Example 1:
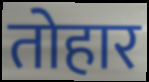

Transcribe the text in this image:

तोहार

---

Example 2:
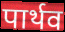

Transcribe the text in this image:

पार्थव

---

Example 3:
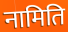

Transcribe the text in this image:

नामिति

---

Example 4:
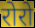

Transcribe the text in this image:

रोरो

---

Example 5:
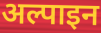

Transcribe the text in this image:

अल्पाइन